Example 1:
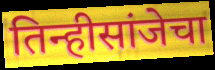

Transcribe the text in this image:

तिन्हीसांजेचा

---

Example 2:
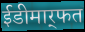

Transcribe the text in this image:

ईडीमार्फत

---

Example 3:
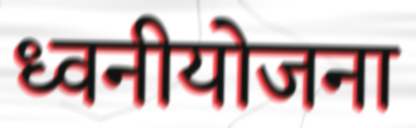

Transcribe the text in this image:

ध्वनीयोजना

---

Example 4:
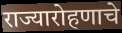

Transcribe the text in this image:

राज्यारोहणाचे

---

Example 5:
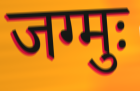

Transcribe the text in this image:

जग्मुः